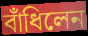
বাঁধিলেন